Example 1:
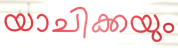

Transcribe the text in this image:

യാചിക്കയും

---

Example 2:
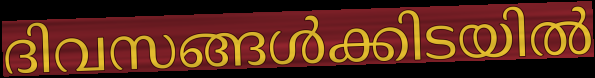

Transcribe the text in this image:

ദിവസങ്ങൾക്കിടയിൽ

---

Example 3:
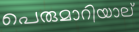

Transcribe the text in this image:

പെരുമാറിയാല്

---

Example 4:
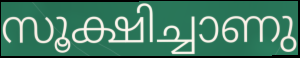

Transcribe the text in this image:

സൂക്ഷിച്ചാണു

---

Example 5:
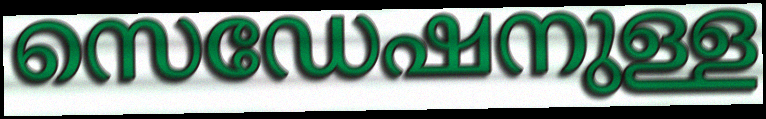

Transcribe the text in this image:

സെഡേഷനുള്ള